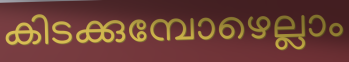
കിടക്കുമ്പോഴെല്ലാം